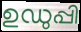
ഉഡുപ്പി